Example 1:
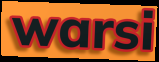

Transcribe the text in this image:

warsi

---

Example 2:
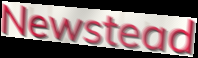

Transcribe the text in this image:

Newstead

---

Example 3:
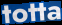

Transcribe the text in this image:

totta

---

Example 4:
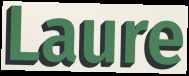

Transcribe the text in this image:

Laure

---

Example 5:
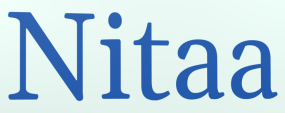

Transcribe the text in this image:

Nitaa